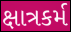
ક્ષાત્રકર્મ